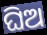
ଘିଅ